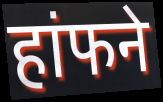
हांफने